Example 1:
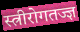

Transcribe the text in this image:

स्‍त्रीरोगतज्‍ज्ञ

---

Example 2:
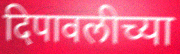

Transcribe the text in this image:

दिपावलीच्या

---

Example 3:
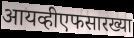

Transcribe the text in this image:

आयव्हीएफसारख्या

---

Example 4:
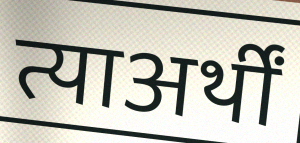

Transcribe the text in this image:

त्याअर्थीं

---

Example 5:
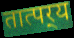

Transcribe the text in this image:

तात्पर्य